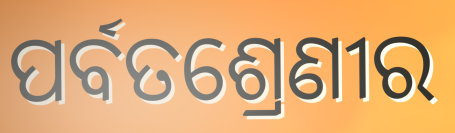
ପର୍ବତଶ୍ରେଣୀର